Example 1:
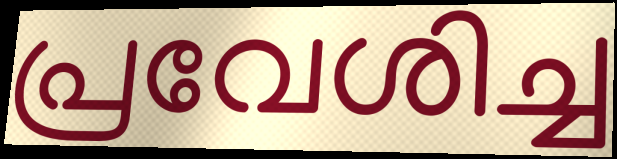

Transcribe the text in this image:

പ്രവേശിച്ച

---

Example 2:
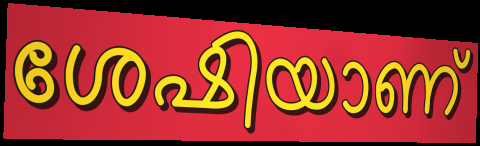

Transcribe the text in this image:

ശേഷിയാണ്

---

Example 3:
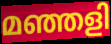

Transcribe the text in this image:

മഞ്ഞളി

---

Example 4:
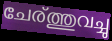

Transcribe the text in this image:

ചേര്ത്തുവച്ചു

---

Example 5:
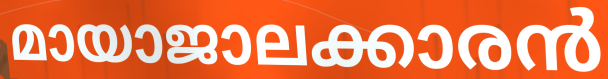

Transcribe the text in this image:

മായാജാലക്കാരൻ